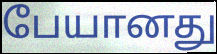
பேயானது